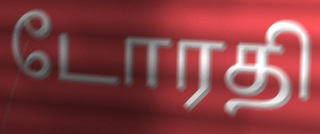
டோரதி